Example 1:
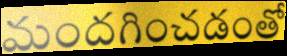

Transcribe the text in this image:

మందగించడంతో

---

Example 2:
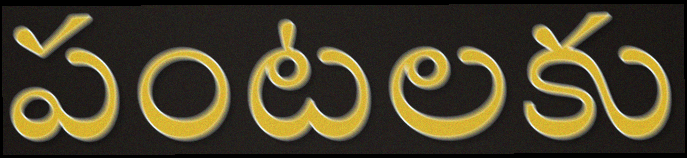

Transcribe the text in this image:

పంటలకు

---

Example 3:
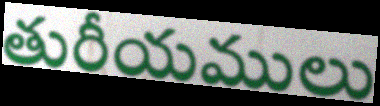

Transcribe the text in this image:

తురీయములు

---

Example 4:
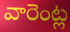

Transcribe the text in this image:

వారెంట్ల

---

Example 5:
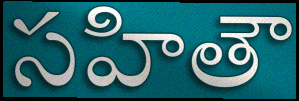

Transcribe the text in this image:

సహితౌ